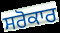
ਸਰੋਕਾਰ